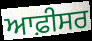
ਆਫ਼ੀਸਰ